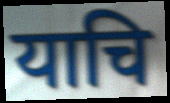
याचि